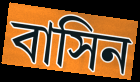
বাসিন